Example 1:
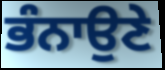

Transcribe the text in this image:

ਭੰਨਾਉਣੇ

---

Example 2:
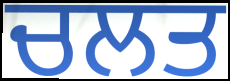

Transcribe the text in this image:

ਚਲਤ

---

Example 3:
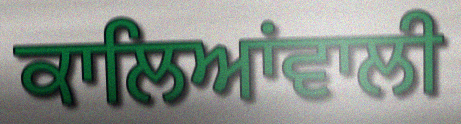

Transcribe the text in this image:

ਕਾਲਿਆਂਵਾਲੀ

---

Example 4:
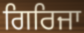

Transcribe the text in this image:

ਗਿਰਿਜਾ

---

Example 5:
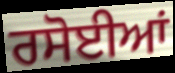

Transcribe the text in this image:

ਰਸੋਈਆਂ